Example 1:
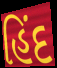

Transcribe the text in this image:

હિંદ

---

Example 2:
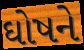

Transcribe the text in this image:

ઘોષને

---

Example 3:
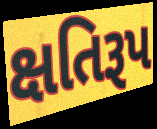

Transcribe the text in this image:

ક્ષતિરૂપ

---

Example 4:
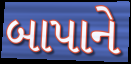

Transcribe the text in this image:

બાપાને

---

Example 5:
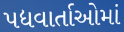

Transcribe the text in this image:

પદ્યવાર્તાઓમાં